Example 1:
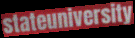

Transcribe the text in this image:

stateuniversity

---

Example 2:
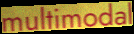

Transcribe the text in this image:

multimodal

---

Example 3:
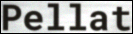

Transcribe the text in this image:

Pellat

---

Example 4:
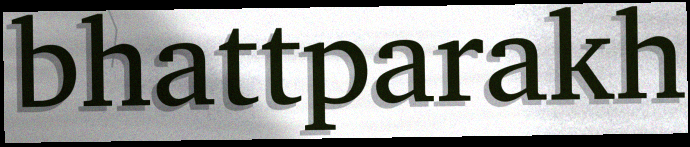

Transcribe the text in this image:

bhattparakh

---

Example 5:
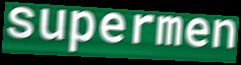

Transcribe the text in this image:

supermen